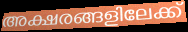
അക്ഷരങ്ങളിലേക്ക്